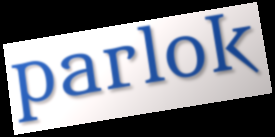
parlok